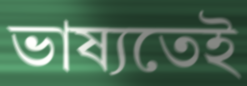
ভাষ্যতেই